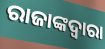
ରାଜାଙ୍କଦ୍ଵାରା